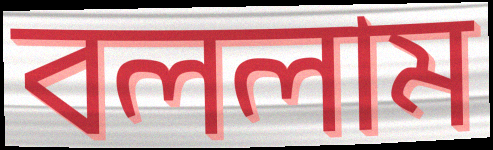
বললাম